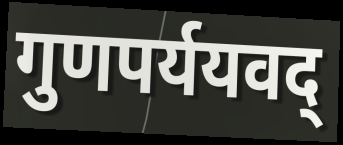
गुणपर्ययवद्